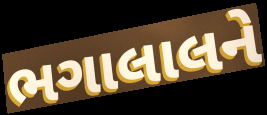
ભગાલાલને